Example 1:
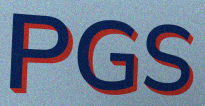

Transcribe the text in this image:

PGS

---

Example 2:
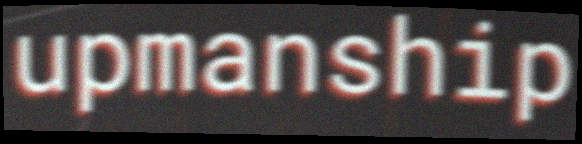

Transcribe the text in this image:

upmanship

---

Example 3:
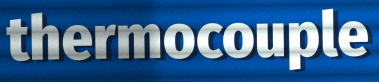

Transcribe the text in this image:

thermocouple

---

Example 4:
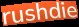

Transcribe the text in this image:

rushdie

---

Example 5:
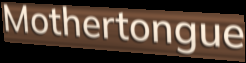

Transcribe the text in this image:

Mothertongue